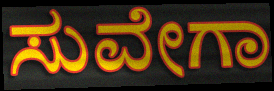
ಸುವೇಗಾ